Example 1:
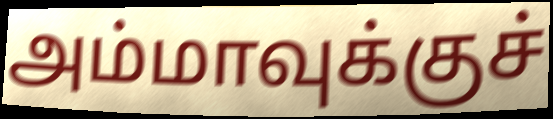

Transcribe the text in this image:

அம்மாவுக்குச்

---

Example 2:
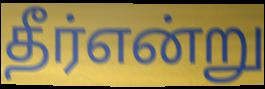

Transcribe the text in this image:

தீர்என்று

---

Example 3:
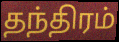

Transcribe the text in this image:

தந்திரம்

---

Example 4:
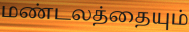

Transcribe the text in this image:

மண்டலத்தையும்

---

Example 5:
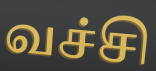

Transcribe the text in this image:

வச்சி